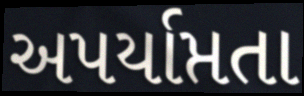
અપર્યાપ્તતા